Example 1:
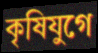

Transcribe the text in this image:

কৃষিযুগে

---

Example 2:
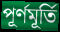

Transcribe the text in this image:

পূর্ণমূর্তি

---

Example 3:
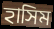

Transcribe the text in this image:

হাসিম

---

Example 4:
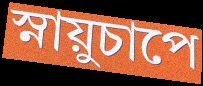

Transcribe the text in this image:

স্নায়ুচাপে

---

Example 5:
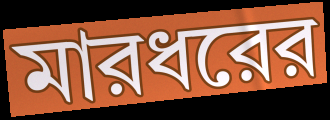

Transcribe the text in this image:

মারধরের